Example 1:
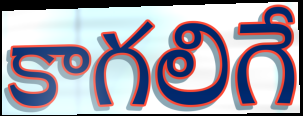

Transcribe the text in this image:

కాగలిగే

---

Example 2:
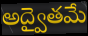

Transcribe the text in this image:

అద్వైతమే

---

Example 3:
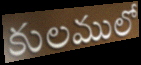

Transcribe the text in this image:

కులములో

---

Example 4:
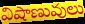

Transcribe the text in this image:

విషాణువులు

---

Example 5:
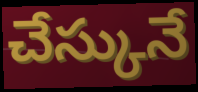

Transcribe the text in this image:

చేస్కునే